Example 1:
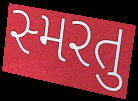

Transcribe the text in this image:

સ્મરતુ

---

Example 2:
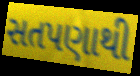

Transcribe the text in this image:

સતપણાથી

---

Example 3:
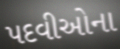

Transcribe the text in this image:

પદવીઓના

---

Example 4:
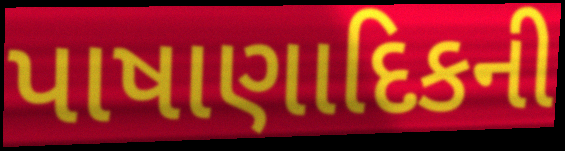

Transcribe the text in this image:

પાષાણાદિકની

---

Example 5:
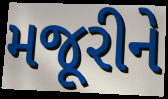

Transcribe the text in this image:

મજૂરીને